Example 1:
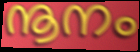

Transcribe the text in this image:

നൂനം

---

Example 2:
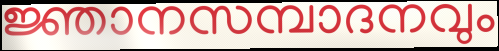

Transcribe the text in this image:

ജ്ഞാനസമ്പാദനവും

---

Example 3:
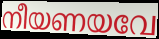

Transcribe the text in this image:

നീയണയവേ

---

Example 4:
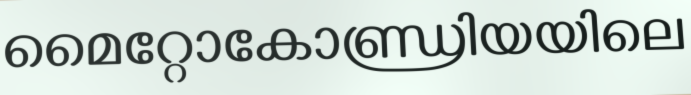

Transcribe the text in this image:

മൈറ്റോകോണ്ഡ്രിയയിലെ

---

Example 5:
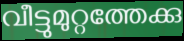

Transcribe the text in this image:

വീട്ടുമുറ്റത്തേക്കു